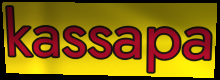
kassapa